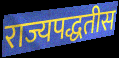
राज्यपद्धतीस